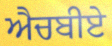
ਐਚਬੀਏ